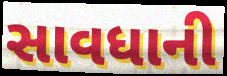
સાવધાની